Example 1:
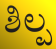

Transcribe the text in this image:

ಶಿಲ್ಪ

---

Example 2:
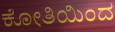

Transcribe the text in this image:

ಕೋತಿಯಿಂದ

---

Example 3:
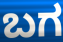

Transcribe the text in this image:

ಬಗ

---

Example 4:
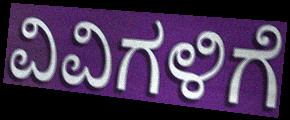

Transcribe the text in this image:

ವಿವಿಗಳಿಗೆ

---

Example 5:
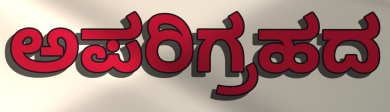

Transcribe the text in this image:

ಅಪರಿಗ್ರಹದ